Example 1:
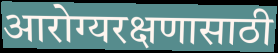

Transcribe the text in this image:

आरोग्यरक्षणासाठी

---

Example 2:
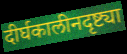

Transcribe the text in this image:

दीर्घकालीनदृष्ट्या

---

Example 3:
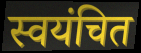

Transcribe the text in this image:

स्वयंचित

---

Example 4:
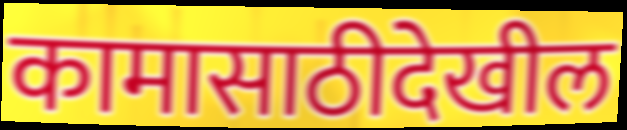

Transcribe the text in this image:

कामासाठीदेखील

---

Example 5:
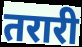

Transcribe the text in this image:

तरारी